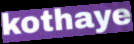
kothaye